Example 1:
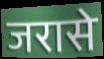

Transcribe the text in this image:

जरासे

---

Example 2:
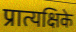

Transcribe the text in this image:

प्रात्यक्षिके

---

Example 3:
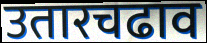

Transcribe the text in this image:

उतारचढाव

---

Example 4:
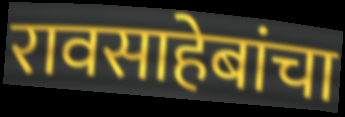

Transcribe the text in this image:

रावसाहेबांचा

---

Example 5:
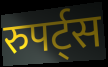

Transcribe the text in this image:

रुपर्ट्स